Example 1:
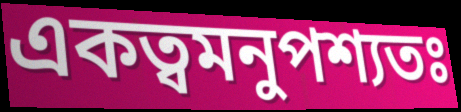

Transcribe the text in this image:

একত্বমনুপশ্যতঃ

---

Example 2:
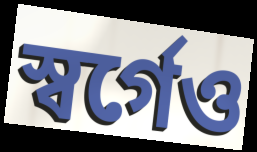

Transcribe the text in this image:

স্বর্গেও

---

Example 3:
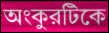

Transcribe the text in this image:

অংকুরটিকে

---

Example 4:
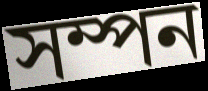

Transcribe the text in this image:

সম্পন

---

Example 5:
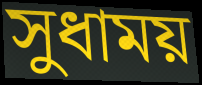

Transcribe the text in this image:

সুধাময়